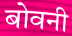
बोवनी